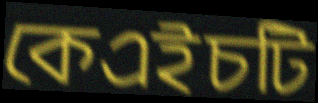
কেএইচটি